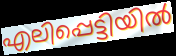
എലിപ്പെട്ടിയിൽ